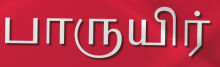
பாருயிர்